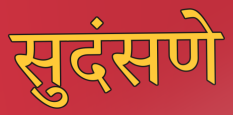
सुदंसणे